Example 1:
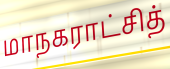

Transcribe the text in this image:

மாநகராட்சித்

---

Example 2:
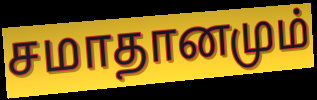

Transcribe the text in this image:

சமாதானமும்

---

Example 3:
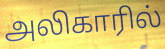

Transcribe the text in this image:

அலிகாரில்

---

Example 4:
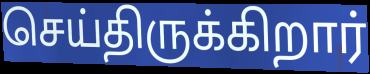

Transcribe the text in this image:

செய்திருக்கிறார்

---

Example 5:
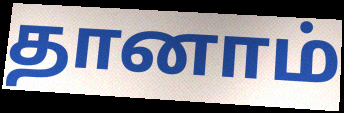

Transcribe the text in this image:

தானாம்